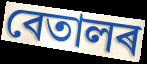
বেতালৰ